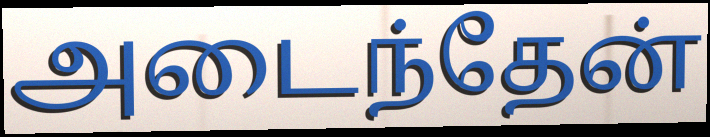
அடைந்தேன்